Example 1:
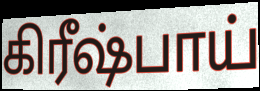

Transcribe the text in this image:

கிரீஷ்பாய்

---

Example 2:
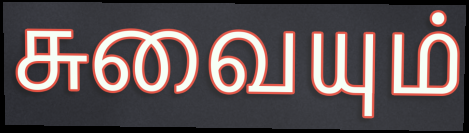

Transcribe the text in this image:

சுவையும்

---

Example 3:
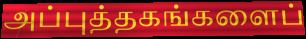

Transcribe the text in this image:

அப்புத்தகங்களைப்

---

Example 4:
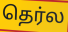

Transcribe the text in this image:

தெர்ல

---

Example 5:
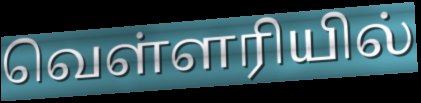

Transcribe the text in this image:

வெள்ளரியில்